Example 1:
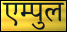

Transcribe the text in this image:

एम्पुल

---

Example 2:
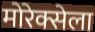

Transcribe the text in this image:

मोरेक्सेला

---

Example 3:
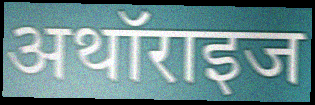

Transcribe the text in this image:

अथॉराइज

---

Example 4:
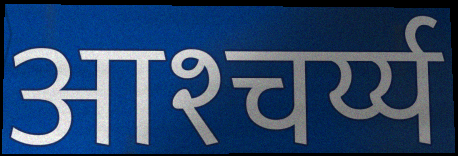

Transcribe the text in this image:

आश्चर्य्य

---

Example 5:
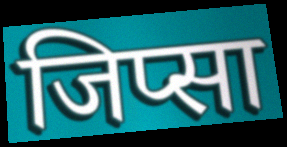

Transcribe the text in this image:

जिप्सा